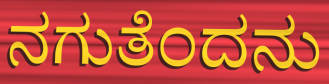
ನಗುತೆಂದನು